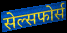
सेल्सफोर्स